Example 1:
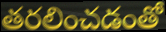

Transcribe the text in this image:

తరలించడంతో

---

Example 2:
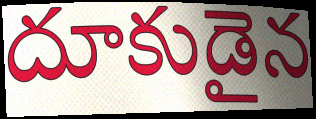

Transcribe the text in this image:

దూకుడైన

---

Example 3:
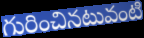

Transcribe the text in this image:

గురించినటువంటి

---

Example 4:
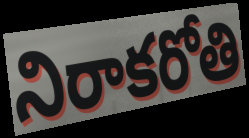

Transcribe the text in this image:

నిరాకరోతి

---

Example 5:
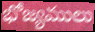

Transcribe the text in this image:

భోజ్యములు